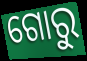
ଗୋରୁ